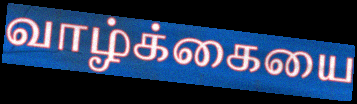
வாழ்க்கையை